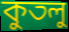
কুতলু